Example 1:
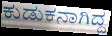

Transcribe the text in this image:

ಕುಡುಕನಾಗಿದ್ದ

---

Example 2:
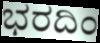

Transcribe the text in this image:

ಭರದಿಂ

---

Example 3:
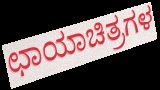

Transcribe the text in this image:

ಛಾಯಾಚಿತ್ರಗಳ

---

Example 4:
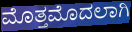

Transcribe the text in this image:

ಮೊತ್ತಮೊದಲಾಗಿ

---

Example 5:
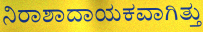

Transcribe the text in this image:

ನಿರಾಶಾದಾಯಕವಾಗಿತ್ತು